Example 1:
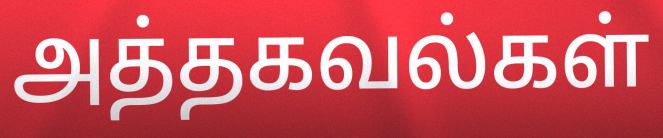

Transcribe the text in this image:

அத்தகவல்கள்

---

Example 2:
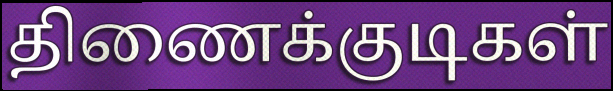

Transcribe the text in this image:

திணைக்குடிகள்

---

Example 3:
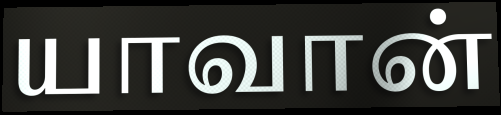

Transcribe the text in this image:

யாவான்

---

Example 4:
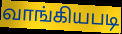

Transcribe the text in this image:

வாங்கியபடி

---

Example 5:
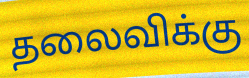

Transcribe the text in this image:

தலைவிக்கு